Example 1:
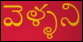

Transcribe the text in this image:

వెళ్ళని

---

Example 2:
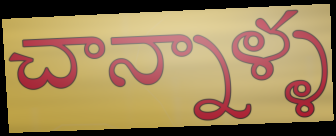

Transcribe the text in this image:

చాన్నాళ్ళ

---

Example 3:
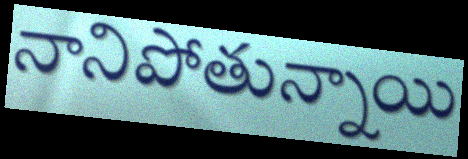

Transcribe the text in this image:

నానిపోతున్నాయి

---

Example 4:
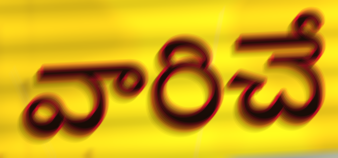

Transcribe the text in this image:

వారిచే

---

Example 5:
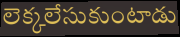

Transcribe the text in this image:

లెక్కలేసుకుంటాడు